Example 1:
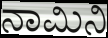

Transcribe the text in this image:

ನಾಮಿನಿ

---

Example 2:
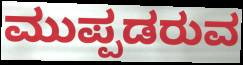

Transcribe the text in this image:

ಮುಪ್ಪಡರುವ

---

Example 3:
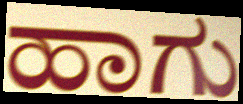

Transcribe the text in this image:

ಹಾಗು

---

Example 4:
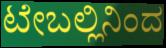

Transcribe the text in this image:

ಟೇಬಲ್ಲಿನಿಂದ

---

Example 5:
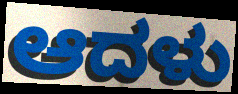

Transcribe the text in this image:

ಆದಳು